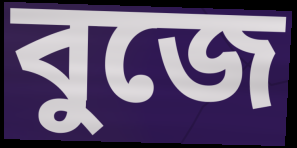
বুজে